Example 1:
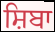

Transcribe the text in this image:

ਸ਼ਿਬਾ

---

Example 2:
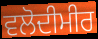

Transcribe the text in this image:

ਵਲੋਦੀਮੀਰ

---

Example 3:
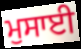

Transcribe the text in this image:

ਮੁਸਾਈ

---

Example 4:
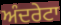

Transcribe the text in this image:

ਅੰਦਰੇਟਾ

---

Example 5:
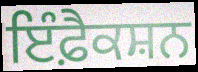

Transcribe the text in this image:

ਇੰਫ਼ੈਕਸ਼ਨ